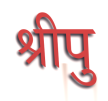
श्रीपु